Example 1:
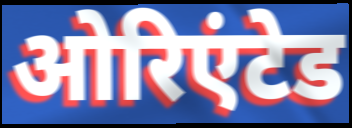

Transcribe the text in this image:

ओरिएंटेड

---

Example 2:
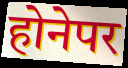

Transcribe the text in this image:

होनेपर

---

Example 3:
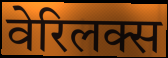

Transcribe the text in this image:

वेरिलक्स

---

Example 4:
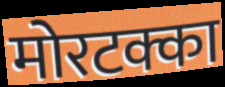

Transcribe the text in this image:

मोरटक्का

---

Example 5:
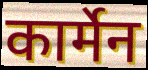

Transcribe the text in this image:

कार्मेन